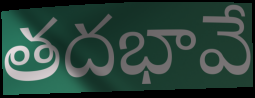
తదభావే